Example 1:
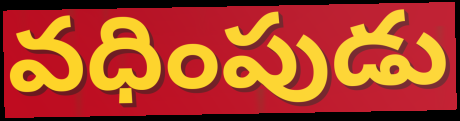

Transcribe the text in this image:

వధింపుడు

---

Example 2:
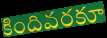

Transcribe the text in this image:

కిందివరకూ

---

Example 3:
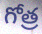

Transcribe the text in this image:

గోత్ర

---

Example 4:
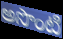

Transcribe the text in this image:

అసొంటి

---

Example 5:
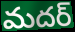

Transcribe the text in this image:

మదర్